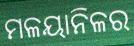
ମଳୟାନିଳର